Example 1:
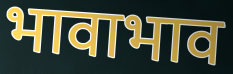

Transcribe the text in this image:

भावाभाव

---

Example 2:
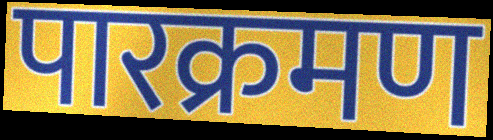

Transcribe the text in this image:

पारक्रमण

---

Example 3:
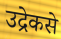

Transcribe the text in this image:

उद्रेकसे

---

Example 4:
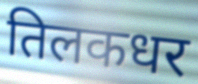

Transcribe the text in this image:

तिलकधर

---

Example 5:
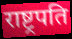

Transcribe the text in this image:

राष्ट्र्रपति